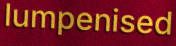
lumpenised